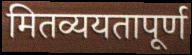
मितव्ययतापूर्ण